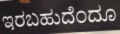
ಇರಬಹುದೆಂದೂ